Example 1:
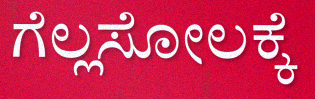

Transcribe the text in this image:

ಗೆಲ್ಲಸೋಲಕ್ಕೆ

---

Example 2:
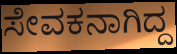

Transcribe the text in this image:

ಸೇವಕನಾಗಿದ್ದ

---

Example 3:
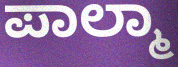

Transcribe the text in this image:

ಪಾಲ್ಮಾ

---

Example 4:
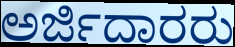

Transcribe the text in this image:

ಅರ್ಜಿದಾರರು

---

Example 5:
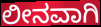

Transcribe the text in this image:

ಲೀನವಾಗಿ